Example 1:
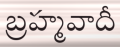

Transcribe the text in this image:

బ్రహ్మవాదీ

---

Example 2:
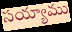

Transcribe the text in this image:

సయ్యాము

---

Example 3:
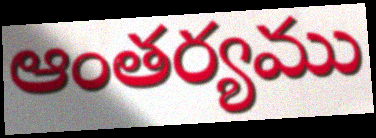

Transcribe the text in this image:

ఆంతర్యము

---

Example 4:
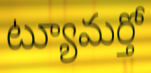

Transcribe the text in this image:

ట్యూమర్తో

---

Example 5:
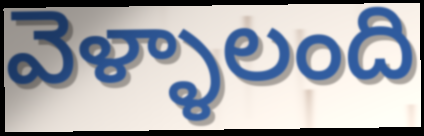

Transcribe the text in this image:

వెళ్ళాలంది